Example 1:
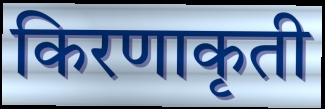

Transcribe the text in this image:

किरणाकृती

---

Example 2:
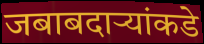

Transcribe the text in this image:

जबाबदाऱ्यांकडे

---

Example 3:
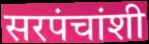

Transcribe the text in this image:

सरपंचांशी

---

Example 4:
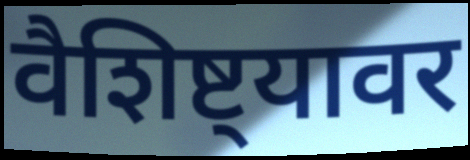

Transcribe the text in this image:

वैशिष्ट्यावर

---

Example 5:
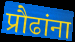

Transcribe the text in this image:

प्रौढांना